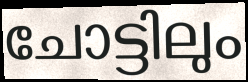
ചോട്ടിലും